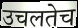
उचलतेच